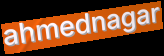
ahmednagar